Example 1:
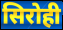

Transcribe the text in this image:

सिरोही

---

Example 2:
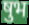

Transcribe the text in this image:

षुभ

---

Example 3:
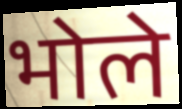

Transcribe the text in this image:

भोले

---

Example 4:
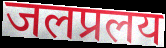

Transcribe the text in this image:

जलप्रलय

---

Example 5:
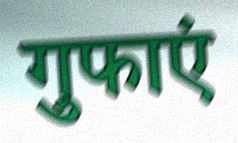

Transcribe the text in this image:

गुफाएं